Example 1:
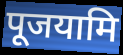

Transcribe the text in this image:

पूजयामि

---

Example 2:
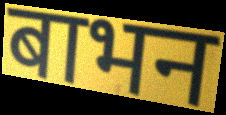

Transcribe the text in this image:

बाभन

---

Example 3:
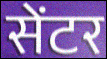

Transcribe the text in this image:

सेंटर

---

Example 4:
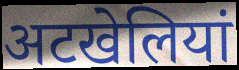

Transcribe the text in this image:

अटखेलियां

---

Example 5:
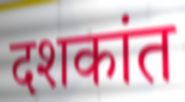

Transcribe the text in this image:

दशकांत